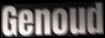
Genoud